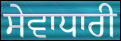
ਸੇਵਾਧਾਰੀ